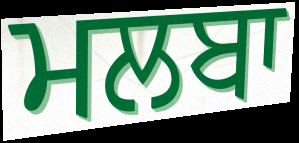
ਮਲਬਾ